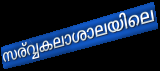
സര്വ്വകലാശാലയിലെ